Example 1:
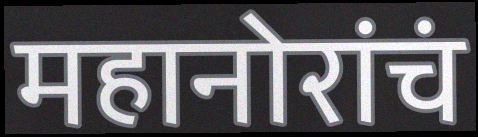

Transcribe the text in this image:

महानोरांचं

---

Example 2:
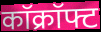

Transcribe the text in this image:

कॉक्रॉफ्ट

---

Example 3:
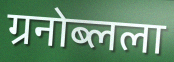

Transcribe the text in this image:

ग्रनोब्लला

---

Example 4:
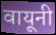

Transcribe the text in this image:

वायूनी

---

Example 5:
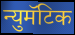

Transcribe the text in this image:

न्युमॅटिक